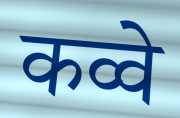
कव्वे